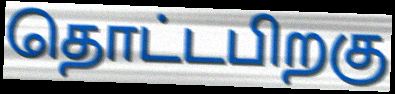
தொட்டபிறகு